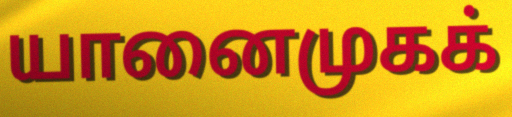
யானைமுகக்